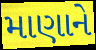
માણાને